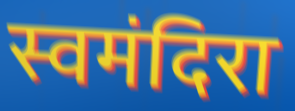
स्वमंदिरा